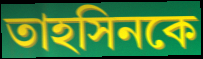
তাহসিনকে